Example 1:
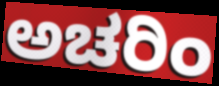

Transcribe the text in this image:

ಅಚರಿಂ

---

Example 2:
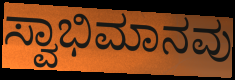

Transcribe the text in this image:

ಸ್ವಾಭಿಮಾನವು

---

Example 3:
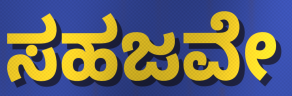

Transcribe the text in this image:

ಸಹಜವೇ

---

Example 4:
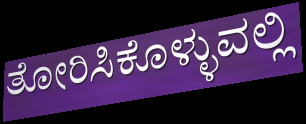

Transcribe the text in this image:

ತೋರಿಸಿಕೊಳ್ಳುವಲ್ಲಿ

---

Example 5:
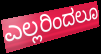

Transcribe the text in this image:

ಎಲ್ಲರಿಂದಲೂ